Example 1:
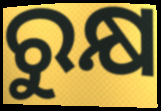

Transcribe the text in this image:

ରୁକ୍ଷ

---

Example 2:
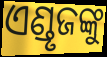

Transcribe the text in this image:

ଏଣ୍ଡୃଜଙ୍କୁ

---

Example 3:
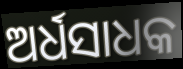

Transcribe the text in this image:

ଅର୍ଧସାଧକ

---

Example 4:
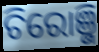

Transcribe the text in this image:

ଚିରୋଞ୍ଜି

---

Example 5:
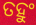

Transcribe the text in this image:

ତହୁଂ